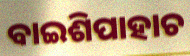
ବାଇଶିପାହାଚ